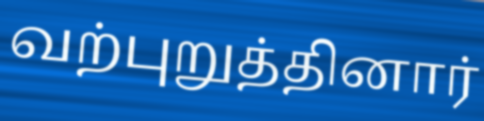
வற்புறுத்தினார்